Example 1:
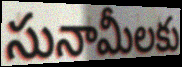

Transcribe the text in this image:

సునామీలకు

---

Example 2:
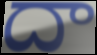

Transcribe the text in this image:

దా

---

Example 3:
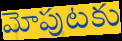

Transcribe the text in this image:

మోపుటకు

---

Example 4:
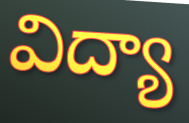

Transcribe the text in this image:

విద్యా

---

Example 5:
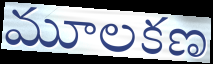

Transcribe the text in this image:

మూలకణ